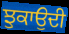
ਝੁਕਾਉਦੀ